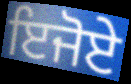
ਇਜੋਏ